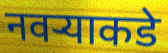
नवऱ्याकडे